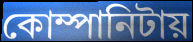
কোম্পানিটায়